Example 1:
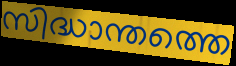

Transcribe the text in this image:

സിദ്ധാന്തത്തെ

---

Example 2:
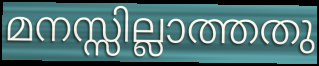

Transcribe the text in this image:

മനസ്സില്ലാത്തതു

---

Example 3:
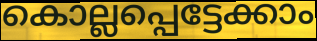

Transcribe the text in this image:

കൊല്ലപ്പെട്ടേക്കാം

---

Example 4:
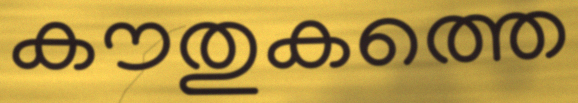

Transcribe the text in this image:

കൗതുകത്തെ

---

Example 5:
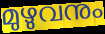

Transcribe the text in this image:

മുഴുവനും